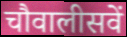
चौवालीसवें